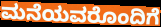
ಮನೆಯವರೊಂದಿಗೆ